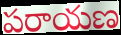
పరాయణ